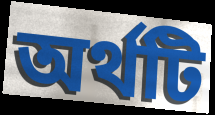
অর্থটি